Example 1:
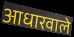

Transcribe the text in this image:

आधारवाले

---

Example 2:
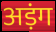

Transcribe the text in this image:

अड़ंग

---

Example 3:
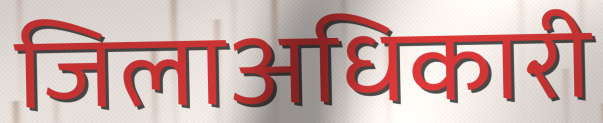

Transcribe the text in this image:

जिलाअधिकारी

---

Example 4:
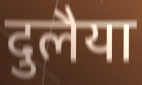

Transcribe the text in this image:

दुलैया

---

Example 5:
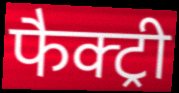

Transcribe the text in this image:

फैक्ट्री